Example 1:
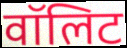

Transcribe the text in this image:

वॉलिट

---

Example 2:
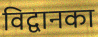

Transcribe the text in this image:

विद्वानका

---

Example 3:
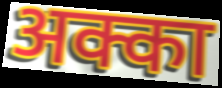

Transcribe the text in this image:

अक्का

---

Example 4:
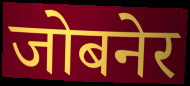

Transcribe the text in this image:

जोबनेर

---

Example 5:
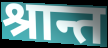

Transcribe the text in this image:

श्रान्त